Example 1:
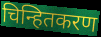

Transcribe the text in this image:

चिन्हितकरण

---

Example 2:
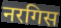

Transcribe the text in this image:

नरगिस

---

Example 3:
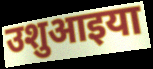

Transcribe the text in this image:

उशुआइया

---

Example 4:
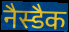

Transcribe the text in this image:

नैस्डैक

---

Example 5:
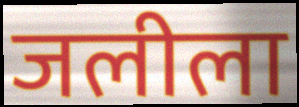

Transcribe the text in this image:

जलीला